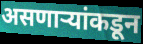
असणाऱ्यांकडून